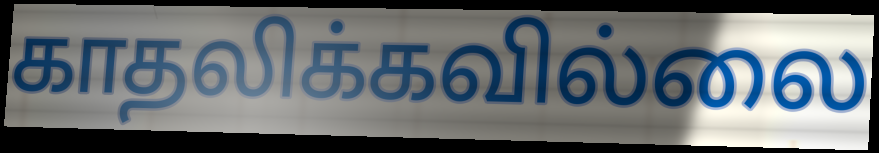
காதலிக்கவில்லை